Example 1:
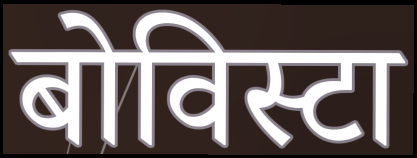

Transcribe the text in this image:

बोविस्टा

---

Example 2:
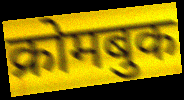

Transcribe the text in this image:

क्रोमबुक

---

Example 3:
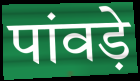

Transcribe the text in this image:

पांवड़े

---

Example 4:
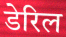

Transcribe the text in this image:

डेरिल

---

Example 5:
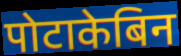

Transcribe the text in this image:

पोटाकेबिन